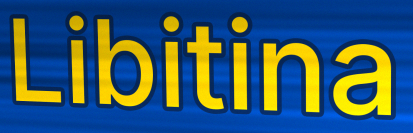
Libitina